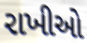
રાખીઓ